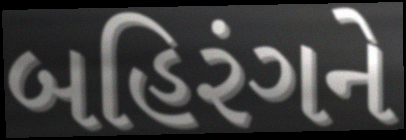
બહિરંગને